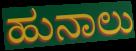
ಹುನಾಲು